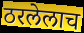
ठरलेलाच